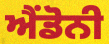
ਐਂਡੋਨੀ